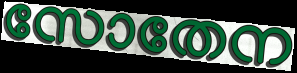
സോതേന